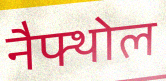
नैफ्थोल